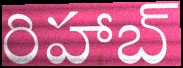
రిహాబ్